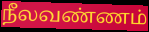
நீலவண்ணம்